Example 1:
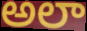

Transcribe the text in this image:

అలా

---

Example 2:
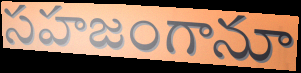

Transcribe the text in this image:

సహజంగానూ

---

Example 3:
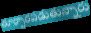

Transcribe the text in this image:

తూర్పారపడుతున్నారు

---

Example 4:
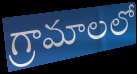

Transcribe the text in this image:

గ్రామాలలో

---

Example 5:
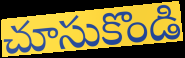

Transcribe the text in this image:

చూసుకొండి